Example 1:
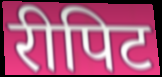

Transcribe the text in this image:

रीपिट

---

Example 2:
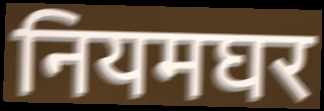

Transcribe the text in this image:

नियमघर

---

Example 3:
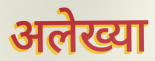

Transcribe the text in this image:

अलेख्या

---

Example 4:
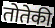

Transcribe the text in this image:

तोतेकी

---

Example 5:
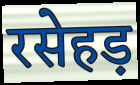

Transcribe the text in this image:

रसेहड़